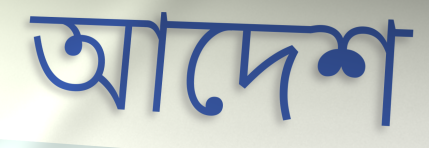
আদেশ